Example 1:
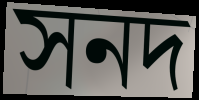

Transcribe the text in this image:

সনদ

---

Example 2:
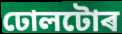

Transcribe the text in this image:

ঢোলটোৰ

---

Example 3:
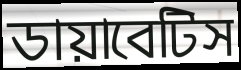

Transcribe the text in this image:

ডায়াবেটিস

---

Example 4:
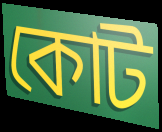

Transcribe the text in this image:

কোট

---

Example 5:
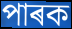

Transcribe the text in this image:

পাৰক